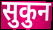
सुकुन